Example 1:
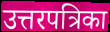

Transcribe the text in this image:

उत्तरपत्रिका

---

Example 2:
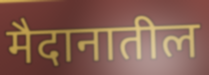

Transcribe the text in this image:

मैदानातील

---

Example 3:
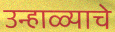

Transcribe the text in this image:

उन्हाळ्याचे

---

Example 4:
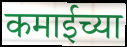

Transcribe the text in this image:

कमाईच्या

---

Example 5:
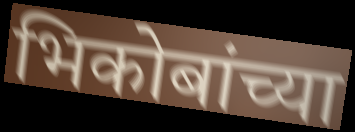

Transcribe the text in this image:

भिकोबांच्या